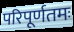
परिपूर्णतमः